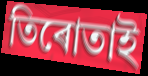
তিৰোতাই